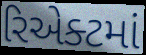
રિએક્ટમાં